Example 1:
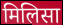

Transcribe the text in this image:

मिलिसा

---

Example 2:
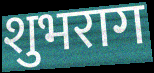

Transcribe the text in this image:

शुभराग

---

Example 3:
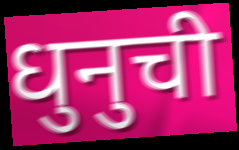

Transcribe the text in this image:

धुनुची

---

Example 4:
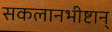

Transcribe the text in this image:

सकलानभीष्टान्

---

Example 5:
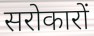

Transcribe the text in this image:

सरोकारों